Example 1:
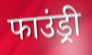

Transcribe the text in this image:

फाउंड्री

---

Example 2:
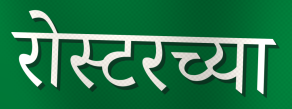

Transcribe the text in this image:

रोस्टरच्या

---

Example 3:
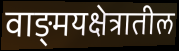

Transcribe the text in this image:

वाङ्मयक्षेत्रातील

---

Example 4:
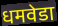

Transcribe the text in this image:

धमवेडा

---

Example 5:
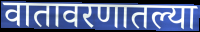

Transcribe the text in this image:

वातावरणातल्या